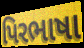
પિરભાષા